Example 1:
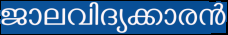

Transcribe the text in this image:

ജാലവിദ്യക്കാരൻ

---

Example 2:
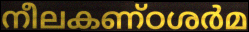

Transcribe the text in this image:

നീലകണ്ഠശർമ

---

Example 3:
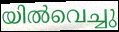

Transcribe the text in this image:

യിൽവെച്ചു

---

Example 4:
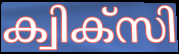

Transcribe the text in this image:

ക്വിക്സി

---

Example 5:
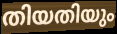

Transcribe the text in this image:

തിയതിയും